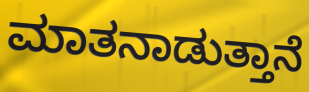
ಮಾತನಾಡುತ್ತಾನೆ